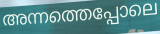
അന്നത്തെപ്പോലെ